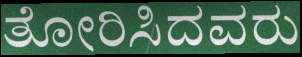
ತೋರಿಸಿದವರು